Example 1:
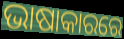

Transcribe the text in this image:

ଭାଷାକାରରେ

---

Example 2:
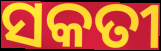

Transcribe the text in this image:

ସକତୀ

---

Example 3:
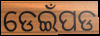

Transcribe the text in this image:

ଡେଇଁପଡ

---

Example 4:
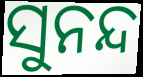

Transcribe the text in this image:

ସୁନନ୍ଦ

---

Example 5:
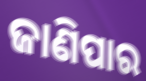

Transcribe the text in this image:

ଜାଣିପାର